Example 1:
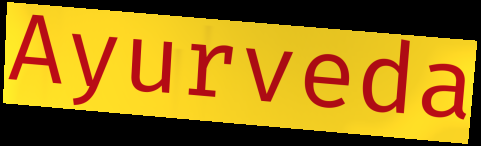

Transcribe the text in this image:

Ayurveda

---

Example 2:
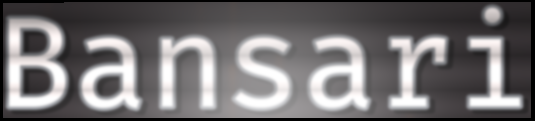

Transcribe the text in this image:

Bansari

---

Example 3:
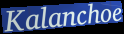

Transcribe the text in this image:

Kalanchoe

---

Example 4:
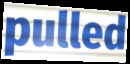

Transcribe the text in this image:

pulled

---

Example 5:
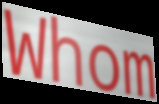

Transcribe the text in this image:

Whom